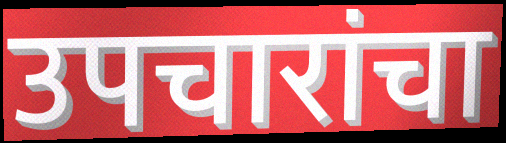
उपचारांचा